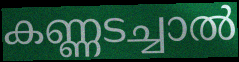
കണ്ണടച്ചാൽ